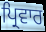
ਪ੍ਰਿਵਾਰ